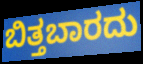
ಬಿತ್ತಬಾರದು